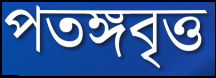
পতঙ্গবৃত্ত